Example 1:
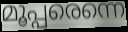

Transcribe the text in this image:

മൂപ്പരെന്നെ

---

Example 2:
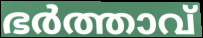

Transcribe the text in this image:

ഭർത്താവ്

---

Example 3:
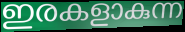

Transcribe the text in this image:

ഇരകളാകുന്ന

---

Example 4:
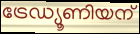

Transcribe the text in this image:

ട്രേഡ്യൂണിയന്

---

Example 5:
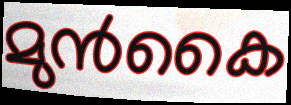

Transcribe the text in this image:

മുൻകൈ